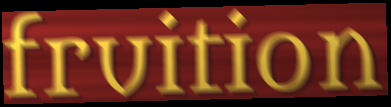
fruition